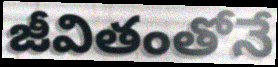
జీవితంతోనే